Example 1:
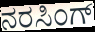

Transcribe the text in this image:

ನರಸಿಂಗ್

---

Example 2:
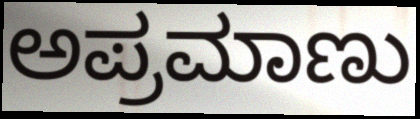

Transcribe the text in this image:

ಅಪ್ರಮಾಣು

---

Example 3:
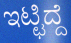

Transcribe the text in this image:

ಇಟ್ಟಿದ್ದೆ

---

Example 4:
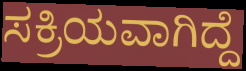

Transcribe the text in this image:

ಸಕ್ರಿಯವಾಗಿದ್ದೆ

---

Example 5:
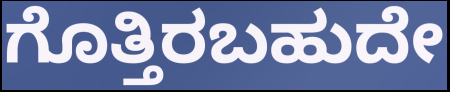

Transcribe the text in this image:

ಗೊತ್ತಿರಬಹುದೇ